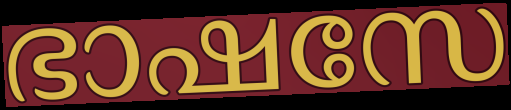
ഭാഷസേ